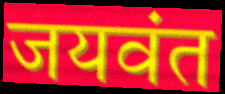
जयवंत